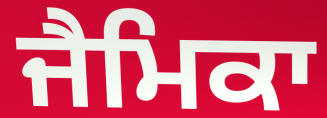
ਜੈਮਿਕਾ